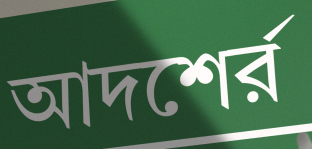
আদশের্র